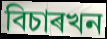
বিচাৰখন